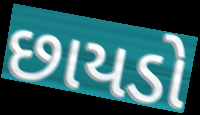
છાયડો